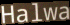
Halwa